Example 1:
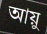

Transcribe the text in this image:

আয়ু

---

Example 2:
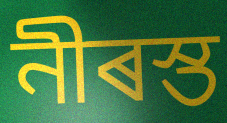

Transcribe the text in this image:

নীৰস্ত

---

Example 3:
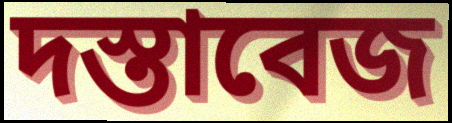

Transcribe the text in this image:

দস্তাবেজ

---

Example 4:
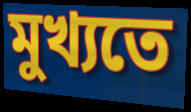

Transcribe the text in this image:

মুখ্যতে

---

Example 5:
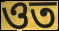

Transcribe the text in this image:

ওত